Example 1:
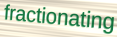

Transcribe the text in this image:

fractionating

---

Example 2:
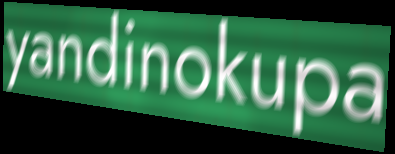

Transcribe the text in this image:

yandinokupa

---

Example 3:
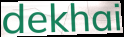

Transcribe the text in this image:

dekhai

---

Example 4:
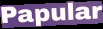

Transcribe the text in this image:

Papular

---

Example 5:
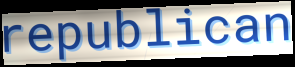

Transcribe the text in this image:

republican